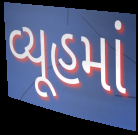
વ્યૂહમાં